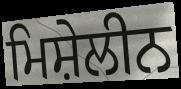
ਮਿਸ਼ੇਲੀਨ